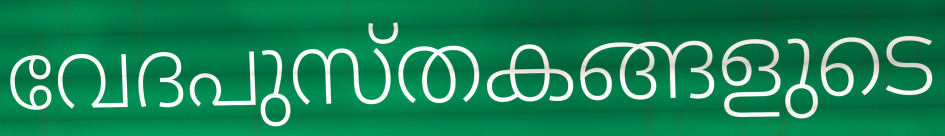
വേദപുസ്തകങ്ങളുടെ